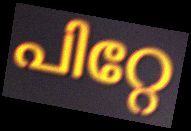
പിറ്റേ